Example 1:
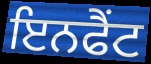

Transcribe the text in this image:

ਇਨਫੈਂਟ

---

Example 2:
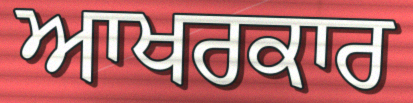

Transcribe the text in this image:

ਆਖਰਕਾਰ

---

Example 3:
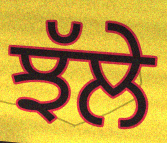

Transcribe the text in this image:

ਝੱਲੇ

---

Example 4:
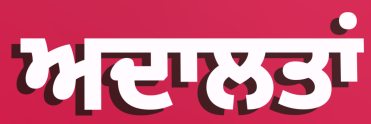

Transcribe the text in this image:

ਅਦਾਲਤਾਂ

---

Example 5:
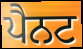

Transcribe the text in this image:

ਪੈਨਟ